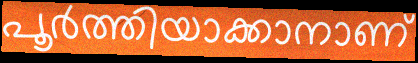
പൂർത്തിയാക്കാനാണ്